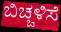
ಬಿಚ್ಚಳಿಸೆ